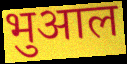
भुआल